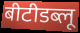
बीटीडब्लू